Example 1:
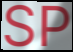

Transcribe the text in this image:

SP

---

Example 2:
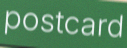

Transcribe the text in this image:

postcard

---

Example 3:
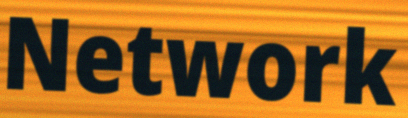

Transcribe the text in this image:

Network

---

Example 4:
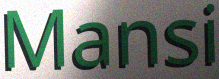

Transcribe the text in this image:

Mansi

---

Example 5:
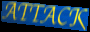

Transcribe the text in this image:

ATTACK